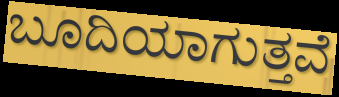
ಬೂದಿಯಾಗುತ್ತವೆ